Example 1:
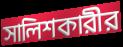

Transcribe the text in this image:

সালিশকারীর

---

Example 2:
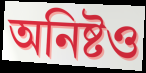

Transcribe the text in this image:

অনিষ্টও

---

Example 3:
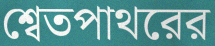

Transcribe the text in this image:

শ্বেতপাথরের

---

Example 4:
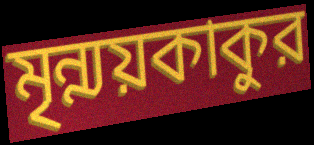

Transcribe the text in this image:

মৃন্ময়কাকুর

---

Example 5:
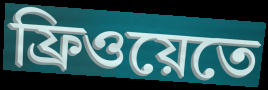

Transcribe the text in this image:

ফ্রিওয়েতে